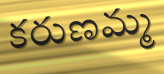
కరుణమ్మ